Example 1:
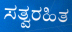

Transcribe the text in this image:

ಸತ್ವರಹಿತ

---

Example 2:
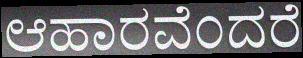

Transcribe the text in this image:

ಆಹಾರವೆಂದರೆ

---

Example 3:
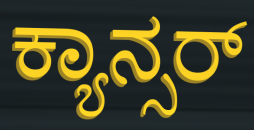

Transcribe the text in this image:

ಕ್ಯಾನ್ಸರ್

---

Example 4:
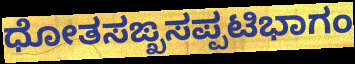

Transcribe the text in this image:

ಧೋತಸಙ್ಖಸಪ್ಪಟಿಭಾಗಂ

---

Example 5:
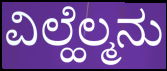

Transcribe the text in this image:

ವಿಲ್ಹೆಲ್ಮನು